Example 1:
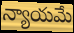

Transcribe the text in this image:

న్యాయమే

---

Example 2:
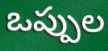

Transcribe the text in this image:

ఒప్పుల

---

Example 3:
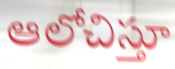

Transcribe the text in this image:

ఆలోచిస్తూ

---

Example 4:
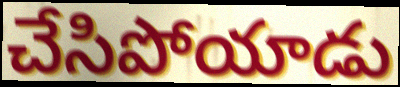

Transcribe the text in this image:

చేసిపోయాడు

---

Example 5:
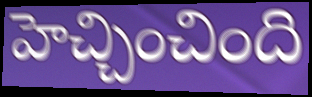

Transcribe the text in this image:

హెచ్చించింది